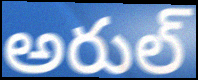
అరుల్